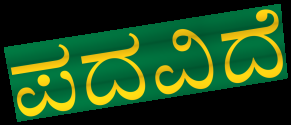
ಪದವಿದೆ